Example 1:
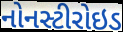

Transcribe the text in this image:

નોનસ્ટીરોઇડ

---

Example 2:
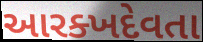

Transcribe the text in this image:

આરક્ખદેવતા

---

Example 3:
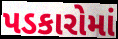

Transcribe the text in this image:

પડકારોમાં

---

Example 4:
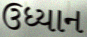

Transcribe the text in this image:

ઉધ્યાન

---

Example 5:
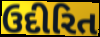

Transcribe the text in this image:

ઉદીરિત